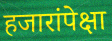
हजारांपेक्षा